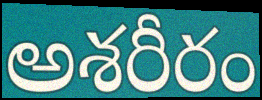
అశరీరం